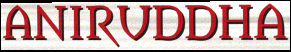
ANIRUDDHA